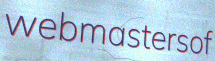
webmastersof